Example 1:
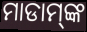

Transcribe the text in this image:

ମାଡାମ୍‌ଙ୍କ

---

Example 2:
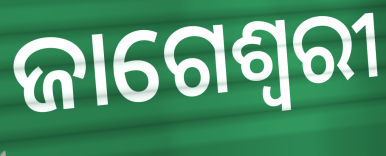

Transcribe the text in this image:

ଜାଗେଶ୍ୱରୀ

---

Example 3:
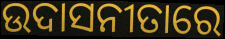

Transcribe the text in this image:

ଉଦାସନୀତାରେ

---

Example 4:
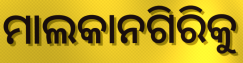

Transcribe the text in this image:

ମାଲକାନଗିରିକୁ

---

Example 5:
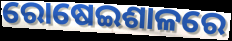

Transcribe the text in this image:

ରୋଷେଇଶାଳରେ